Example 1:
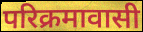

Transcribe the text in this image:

परिक्रमावासी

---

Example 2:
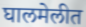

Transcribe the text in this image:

घालमेलीत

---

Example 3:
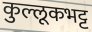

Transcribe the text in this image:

कुल्लूकभट्ट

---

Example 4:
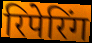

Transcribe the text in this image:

रिपेरिंग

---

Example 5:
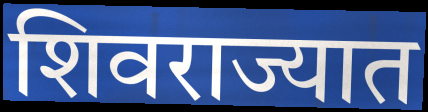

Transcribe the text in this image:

शिवराज्यात